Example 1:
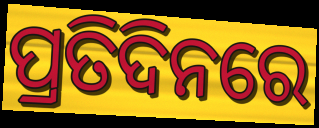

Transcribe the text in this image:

ପ୍ରତିଦିନରେ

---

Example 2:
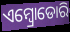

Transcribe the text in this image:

ଏମ୍ବ୍ରୋଡୋରି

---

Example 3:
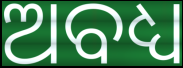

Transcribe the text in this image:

ଅବଧ୍ୟ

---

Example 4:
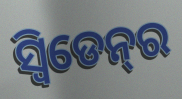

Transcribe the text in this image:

ସ୍ୱିଡେନ୍‍ର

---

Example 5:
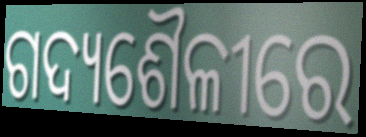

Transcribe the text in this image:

ଗଦ୍ୟଶୈଳୀରେ